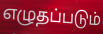
எழுதப்படும்